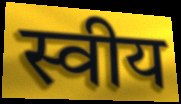
स्वीय